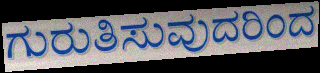
ಗುರುತಿಸುವುದರಿಂದ